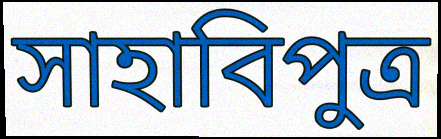
সাহাবিপুত্র